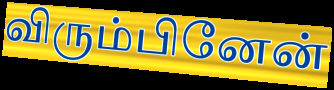
விரும்பினேன்